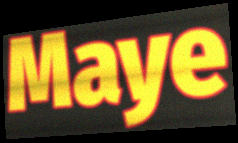
Maye